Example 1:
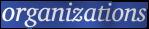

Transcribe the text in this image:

organizations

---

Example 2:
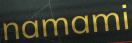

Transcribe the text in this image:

namami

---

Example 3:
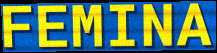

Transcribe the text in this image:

FEMINA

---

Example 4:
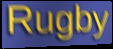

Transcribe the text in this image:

Rugby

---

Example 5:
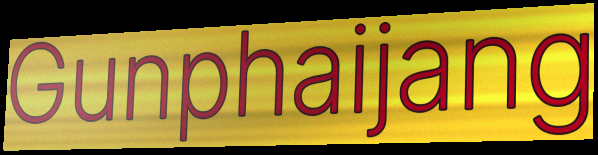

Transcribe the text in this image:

Gunphaijang